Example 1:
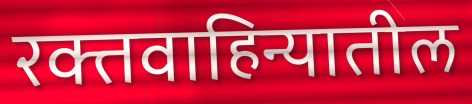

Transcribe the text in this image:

रक्तवाहिन्यातील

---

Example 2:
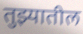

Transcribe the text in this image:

तुझ्यातील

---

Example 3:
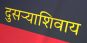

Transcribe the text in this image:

दुसऱ्याशिवाय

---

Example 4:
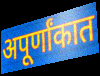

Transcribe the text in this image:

अपूर्णांकात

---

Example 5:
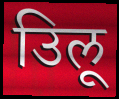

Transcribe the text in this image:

उिलू